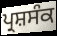
ਪ੍ਰਸ਼ਸੰਕ